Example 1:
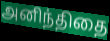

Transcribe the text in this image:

அனிந்திதை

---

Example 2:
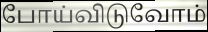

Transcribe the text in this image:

போய்விடுவோம்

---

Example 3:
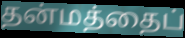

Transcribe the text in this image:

தன்மத்தைப்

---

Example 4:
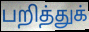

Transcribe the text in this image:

பறித்துக்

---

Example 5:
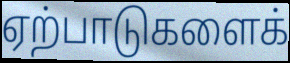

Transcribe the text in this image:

ஏற்பாடுகளைக்